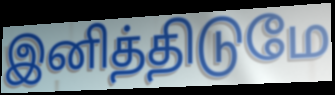
இனித்திடுமே